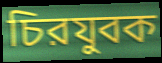
চিরযুবক